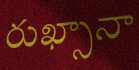
రుఖ్సానా